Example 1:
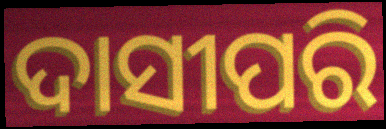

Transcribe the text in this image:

ଦାସୀପରି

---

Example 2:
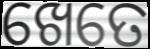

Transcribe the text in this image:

ଖେତେ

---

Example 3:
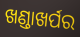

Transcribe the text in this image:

ଖଣ୍ଡାଖର୍ପର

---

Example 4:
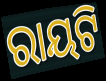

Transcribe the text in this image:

ରାୟଟି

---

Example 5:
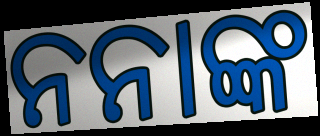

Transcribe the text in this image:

ନନାଙ୍କ